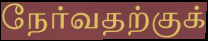
நேர்வதற்குக்